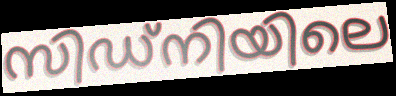
സിഡ്നിയിലെ